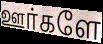
ஊர்களே